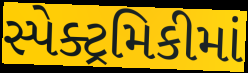
સ્પેક્ટ્રમિકીમાં